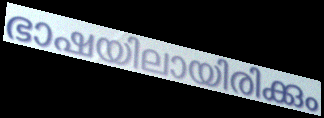
ഭാഷയിലായിരിക്കും